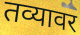
तव्यावर